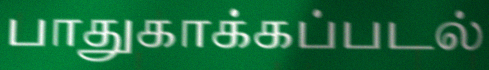
பாதுகாக்கப்படல்